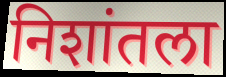
निशांतला